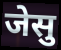
जेसु